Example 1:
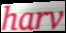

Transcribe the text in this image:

harv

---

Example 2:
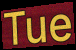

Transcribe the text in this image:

Tue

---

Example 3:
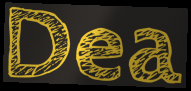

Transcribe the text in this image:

Dea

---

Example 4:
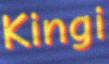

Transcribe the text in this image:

Kingi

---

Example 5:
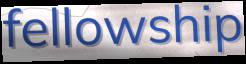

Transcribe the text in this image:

fellowship